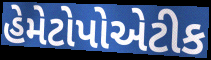
હેમેટોપોએટીક